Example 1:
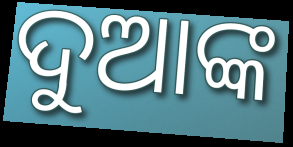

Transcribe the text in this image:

ଦୁଆଙ୍କ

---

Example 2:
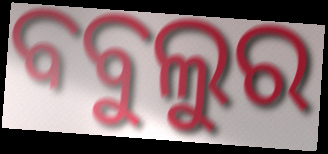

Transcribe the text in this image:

ବବୁଲୁର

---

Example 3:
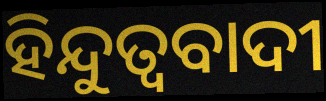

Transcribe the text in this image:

ହିନ୍ଦୁତ୍ୱବାଦୀ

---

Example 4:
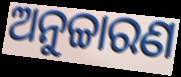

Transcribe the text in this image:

ଅନୁଚ୍ଚାରଣ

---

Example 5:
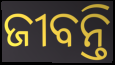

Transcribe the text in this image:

ଜୀବନ୍ତି